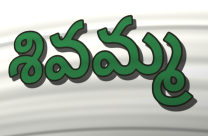
శివమ్మ